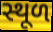
સ્થૂળ